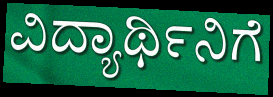
ವಿದ್ಯಾರ್ಥಿನಿಗೆ